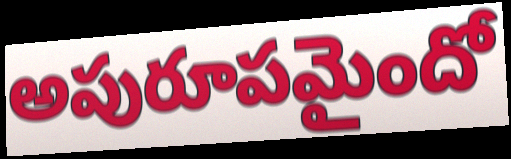
అపురూపమైందో